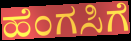
ಹೆಂಗಸಿಗೆ